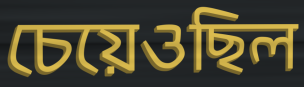
চেয়েওছিল